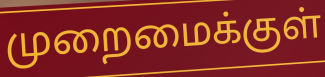
முறைமைக்குள்